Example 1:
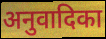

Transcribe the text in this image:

अनुवादिका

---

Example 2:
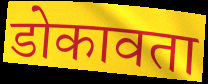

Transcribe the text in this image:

डोकावता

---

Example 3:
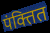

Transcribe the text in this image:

पंक्तित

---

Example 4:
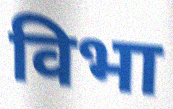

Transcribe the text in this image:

विभा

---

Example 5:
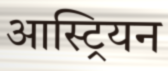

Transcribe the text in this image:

आस्ट्रियन